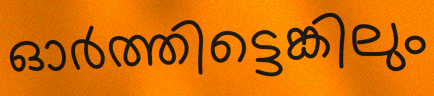
ഓർത്തിട്ടെങ്കിലും